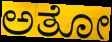
ಅತೋ